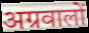
अग्रवालों